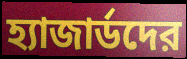
হ্যাজার্ডদের